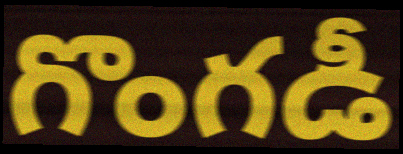
గొంగడీ